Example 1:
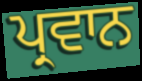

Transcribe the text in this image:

ਪ੍ਰਵਾਨ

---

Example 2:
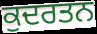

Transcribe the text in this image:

ਕੁਦਰਤਨ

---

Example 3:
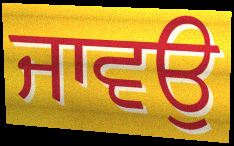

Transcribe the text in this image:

ਜਾਵਉ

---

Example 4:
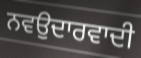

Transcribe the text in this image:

ਨਵਉਦਾਰਵਾਦੀ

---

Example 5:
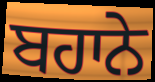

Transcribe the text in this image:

ਬਹਾਨੇ